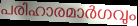
പരിഹാരമാർഗവും